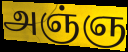
அஞ்ஞ